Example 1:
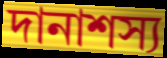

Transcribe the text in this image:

দানাশস্য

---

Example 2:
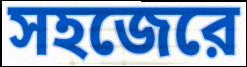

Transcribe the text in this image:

সহজেরে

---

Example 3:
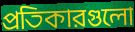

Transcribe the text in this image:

প্রতিকারগুলো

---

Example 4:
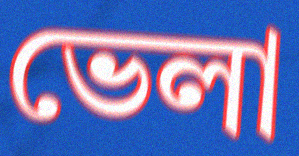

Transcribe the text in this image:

ভেলা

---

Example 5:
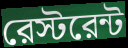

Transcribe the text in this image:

রেস্টরেন্ট